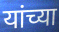
यांच्‍या